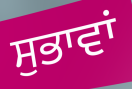
ਸੁਭਾਵਾਂ